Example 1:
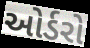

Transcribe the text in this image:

ઓર્ડરો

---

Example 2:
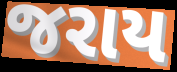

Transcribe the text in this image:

જરાય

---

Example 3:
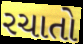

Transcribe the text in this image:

રચાતો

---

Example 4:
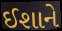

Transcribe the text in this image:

ઈશાને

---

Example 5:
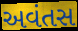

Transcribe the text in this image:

અવંતસ